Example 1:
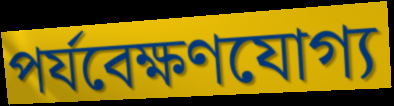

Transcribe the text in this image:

পর্যবেক্ষণযোগ্য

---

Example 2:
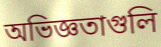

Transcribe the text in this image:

অভিজ্ঞতাগুলি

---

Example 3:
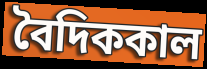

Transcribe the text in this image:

বৈদিককাল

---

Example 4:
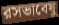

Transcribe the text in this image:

রসভাবেষু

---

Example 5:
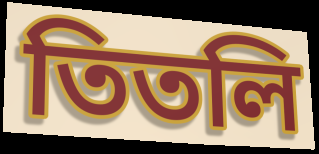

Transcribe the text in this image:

তিতলি